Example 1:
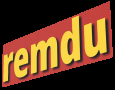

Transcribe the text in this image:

remdu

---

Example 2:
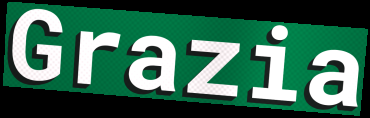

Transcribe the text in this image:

Grazia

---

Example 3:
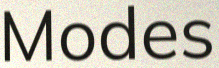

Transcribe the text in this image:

Modes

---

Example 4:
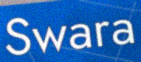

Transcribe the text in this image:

Swara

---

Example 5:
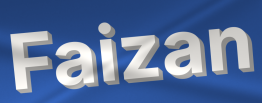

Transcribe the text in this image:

Faizan